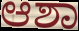
ಆಶಾ